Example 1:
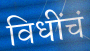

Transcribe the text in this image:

विधींचं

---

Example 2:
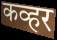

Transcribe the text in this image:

कव्हर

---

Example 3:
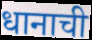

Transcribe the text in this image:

धानाची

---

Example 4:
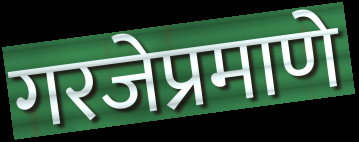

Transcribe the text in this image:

गरजेप्रमाणे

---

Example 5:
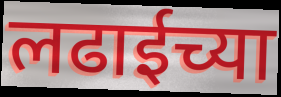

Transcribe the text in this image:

लढाईच्या